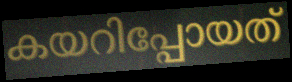
കയറിപ്പോയത്